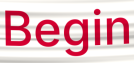
Begin